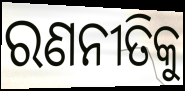
ରଣନୀତିକୁ